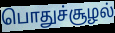
பொதுச்சூழல்